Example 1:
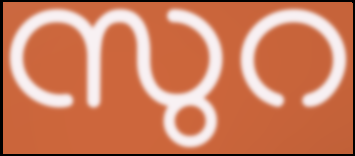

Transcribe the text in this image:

സുറ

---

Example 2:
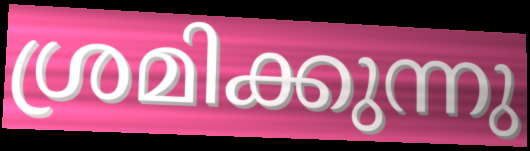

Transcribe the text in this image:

ശ്രമിക്കുന്നു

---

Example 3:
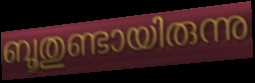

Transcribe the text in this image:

ബൂതുണ്ടായിരുന്നു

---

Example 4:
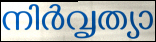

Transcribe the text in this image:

നിർവൃത്യാ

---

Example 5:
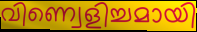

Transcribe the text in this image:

വിണ്വെളിച്ചമായി